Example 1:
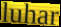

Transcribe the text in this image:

luhar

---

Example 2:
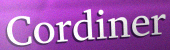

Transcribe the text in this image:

Cordiner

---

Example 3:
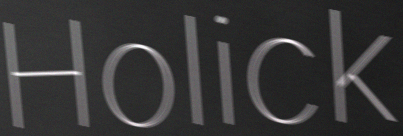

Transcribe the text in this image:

Holick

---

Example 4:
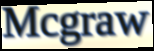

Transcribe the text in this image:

Mcgraw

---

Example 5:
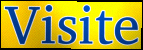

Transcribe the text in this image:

Visite